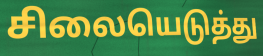
சிலையெடுத்து